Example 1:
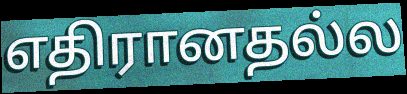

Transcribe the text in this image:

எதிரானதல்ல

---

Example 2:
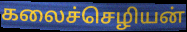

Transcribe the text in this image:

கலைச்செழியன்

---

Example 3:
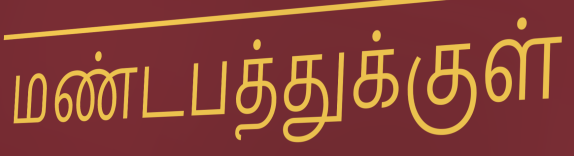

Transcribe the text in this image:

மண்டபத்துக்குள்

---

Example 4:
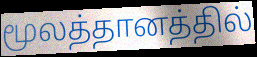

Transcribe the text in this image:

மூலத்தானத்தில்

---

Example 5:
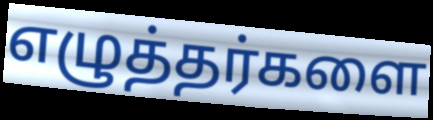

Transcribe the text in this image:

எழுத்தர்களை